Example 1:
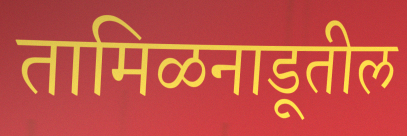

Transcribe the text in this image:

तामिळनाडूतील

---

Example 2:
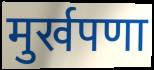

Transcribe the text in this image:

मुर्खपणा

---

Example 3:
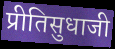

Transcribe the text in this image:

प्रीतिसुधाजी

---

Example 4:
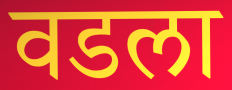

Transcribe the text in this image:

वडला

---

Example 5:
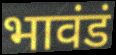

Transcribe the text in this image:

भावंडं